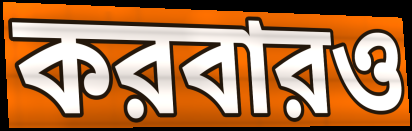
করবারও